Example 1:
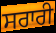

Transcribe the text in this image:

ਸਰਾਰੀ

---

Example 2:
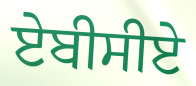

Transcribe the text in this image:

ਏਬੀਸੀਏ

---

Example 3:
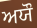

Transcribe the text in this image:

ਅਯੌ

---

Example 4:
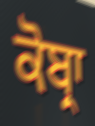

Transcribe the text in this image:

ਕੋਬ੍ਰਾ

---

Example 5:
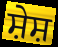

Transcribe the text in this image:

ਸ਼ੇਸ਼